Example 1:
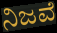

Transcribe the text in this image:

ನಿಜವೆ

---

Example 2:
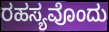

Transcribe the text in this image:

ರಹಸ್ಯವೊಂದು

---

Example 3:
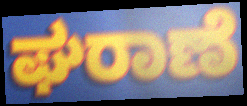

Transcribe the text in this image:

ಘರಾಣೆ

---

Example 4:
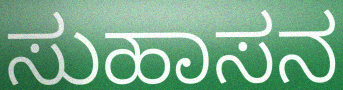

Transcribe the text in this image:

ಸುಹಾಸನ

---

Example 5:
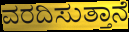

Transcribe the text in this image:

ವರದಿಸುತ್ತಾನೆ